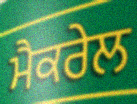
ਮੈਕਰੇਲ